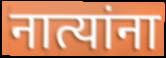
नात्यांना